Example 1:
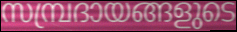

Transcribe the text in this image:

സമ്പ്രദായങ്ങളുടെ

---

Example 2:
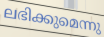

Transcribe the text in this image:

ലഭിക്കുമെന്നു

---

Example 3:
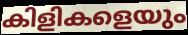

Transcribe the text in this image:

കിളികളെയും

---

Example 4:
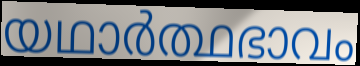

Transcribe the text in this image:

യഥാർത്ഥഭാവം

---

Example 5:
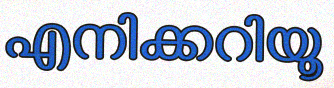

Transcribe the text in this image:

എനിക്കറിയൂ